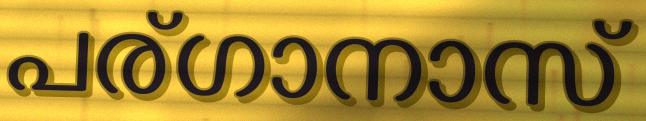
പര്ഗാനാസ്